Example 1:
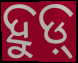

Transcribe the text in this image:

ହୁଡ଼୍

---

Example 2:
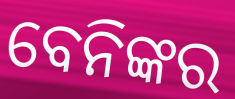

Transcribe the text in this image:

ବେନିଙ୍କର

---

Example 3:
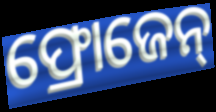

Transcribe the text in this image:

ଫ୍ରୋଜେନ୍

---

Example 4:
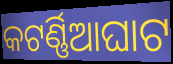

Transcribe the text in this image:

କଟର୍ଣ୍ଣିଆଘାଟ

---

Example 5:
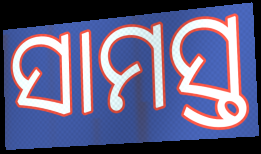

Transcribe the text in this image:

ସାମସ୍ତ